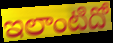
ఇలాంటిదో